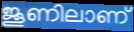
ജൂണിലാണ്